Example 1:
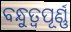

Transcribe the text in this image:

ବନ୍ଧୁତ୍ଵପୂର୍ଣ୍ଣ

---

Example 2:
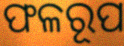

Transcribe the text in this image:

ଫଳରୂପ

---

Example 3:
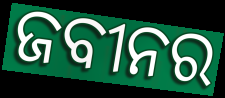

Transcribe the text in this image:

ଜବୀନର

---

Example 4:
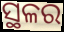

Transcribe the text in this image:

ସ୍ଥଳର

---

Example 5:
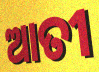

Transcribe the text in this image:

ଆତୀ